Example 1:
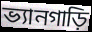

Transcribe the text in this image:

ভ্যানগাড়ি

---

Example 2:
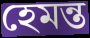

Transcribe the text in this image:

হেমন্ত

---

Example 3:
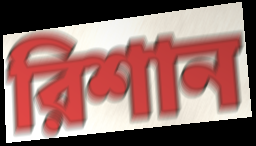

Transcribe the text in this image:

রিশান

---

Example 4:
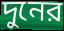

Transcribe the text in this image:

দুনের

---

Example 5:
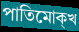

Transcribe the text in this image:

পাতিমোক্খ